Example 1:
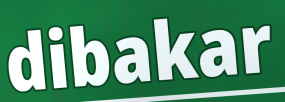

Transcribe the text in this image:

dibakar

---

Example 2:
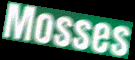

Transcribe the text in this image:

Mosses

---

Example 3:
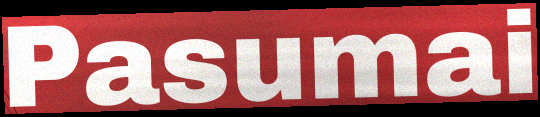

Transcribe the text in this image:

Pasumai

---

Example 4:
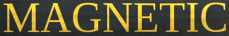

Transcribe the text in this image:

MAGNETIC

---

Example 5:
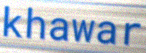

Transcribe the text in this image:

khawar